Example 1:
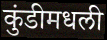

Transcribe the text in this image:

कुंडीमधली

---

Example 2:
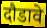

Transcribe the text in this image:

दौडावे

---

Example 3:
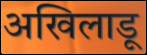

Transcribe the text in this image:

अखिलाडू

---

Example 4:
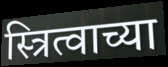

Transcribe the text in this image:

स्त्रित्वाच्या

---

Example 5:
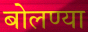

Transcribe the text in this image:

बोलण्या